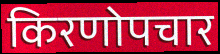
किरणोपचार